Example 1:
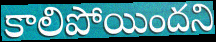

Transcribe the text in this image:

కాలిపోయిందని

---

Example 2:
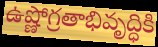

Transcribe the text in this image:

ఉష్ణోగ్రతాభివృద్ధికి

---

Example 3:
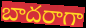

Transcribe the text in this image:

బాదరాగా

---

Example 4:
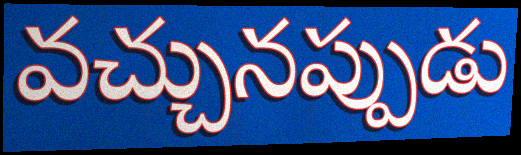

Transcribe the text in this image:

వచ్చునప్పుడు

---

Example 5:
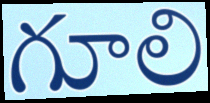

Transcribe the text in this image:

గూలి